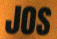
JOS